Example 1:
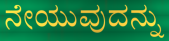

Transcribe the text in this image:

ನೇಯುವುದನ್ನು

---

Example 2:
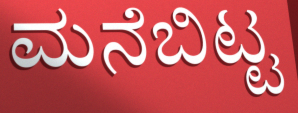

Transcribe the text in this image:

ಮನೆಬಿಟ್ಟ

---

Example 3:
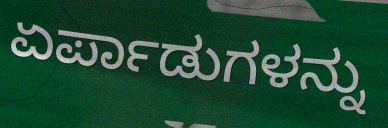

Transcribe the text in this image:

ಏರ್ಪಾಡುಗಳನ್ನು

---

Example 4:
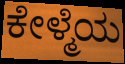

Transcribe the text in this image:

ಕೇಳ್ಮೆಯ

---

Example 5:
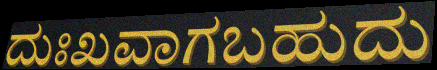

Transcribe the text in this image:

ದುಃಖವಾಗಬಹುದು